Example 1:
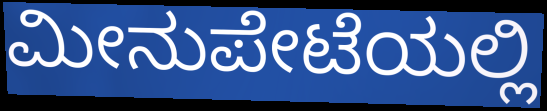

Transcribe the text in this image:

ಮೀನುಪೇಟೆಯಲ್ಲಿ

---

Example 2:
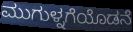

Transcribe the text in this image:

ಮುಗುಳ್ನಗೆಯೊಡನೆ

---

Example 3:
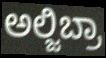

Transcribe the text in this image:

ಅಲ್ಜಿಬ್ರಾ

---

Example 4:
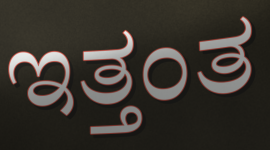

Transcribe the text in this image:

ಇತ್ತಂತ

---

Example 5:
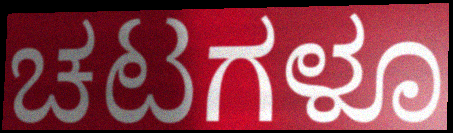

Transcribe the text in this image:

ಚಟಗಳೂ